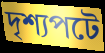
দৃশ্যপটে